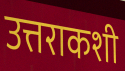
उत्तराकशी